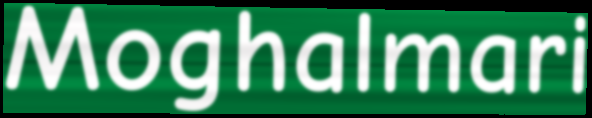
Moghalmari